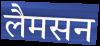
लैमसन